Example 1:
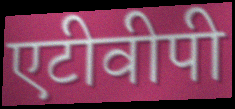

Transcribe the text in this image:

एटीवीपी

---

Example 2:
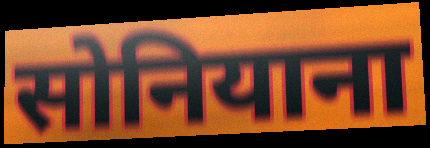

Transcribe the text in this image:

सोनियाना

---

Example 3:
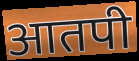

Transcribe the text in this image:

आतपी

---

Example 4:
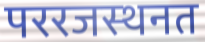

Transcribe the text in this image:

पररजस्थनत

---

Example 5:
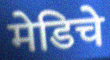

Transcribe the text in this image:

मेडिचे